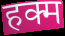
हक्म